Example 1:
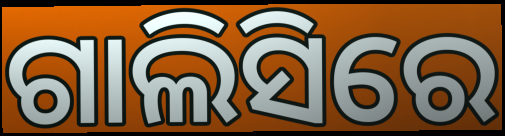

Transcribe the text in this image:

ଗାଲିସିରେ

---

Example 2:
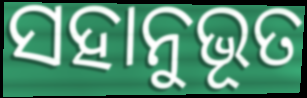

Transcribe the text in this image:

ସହାନୁଭୂତ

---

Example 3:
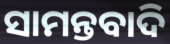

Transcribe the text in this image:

ସାମନ୍ତବାଦି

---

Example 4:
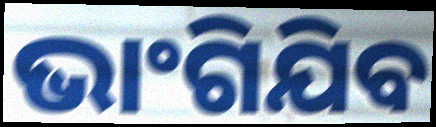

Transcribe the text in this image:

ଭାଂଗିଯିବ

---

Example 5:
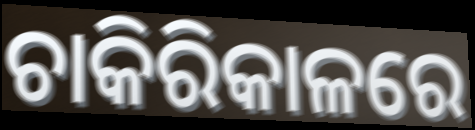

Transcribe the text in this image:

ଚାକିରିକାଳରେ